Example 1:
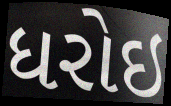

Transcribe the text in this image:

ધરોઇ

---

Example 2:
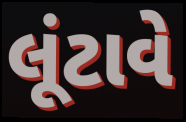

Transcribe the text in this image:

લૂંટાવે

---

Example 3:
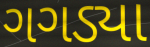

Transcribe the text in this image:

ગગડ્યા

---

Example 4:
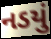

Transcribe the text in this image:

નડયું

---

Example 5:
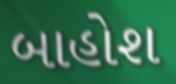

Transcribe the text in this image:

બાહોશ